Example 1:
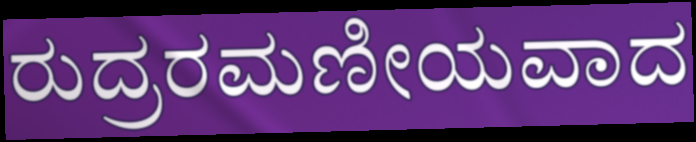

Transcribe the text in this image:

ರುದ್ರರಮಣೀಯವಾದ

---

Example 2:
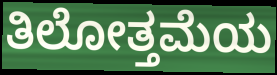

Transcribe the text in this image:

ತಿಲೋತ್ತಮೆಯ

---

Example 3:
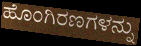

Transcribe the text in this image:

ಹೊಂಗಿರಣಗಳನ್ನು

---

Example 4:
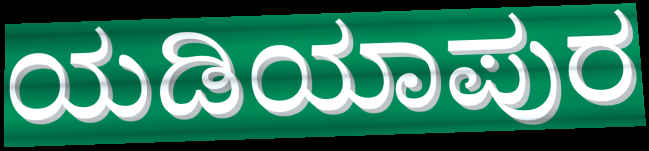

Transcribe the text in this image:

ಯಡಿಯಾಪುರ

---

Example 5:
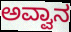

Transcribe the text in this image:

ಅವ್ವಾನ